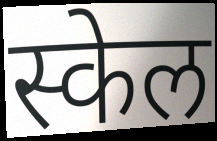
स्केल